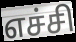
எச்சி